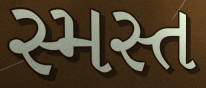
સ્મસ્ત